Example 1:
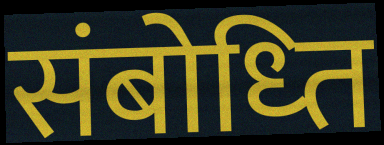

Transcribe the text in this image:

संबोध्ति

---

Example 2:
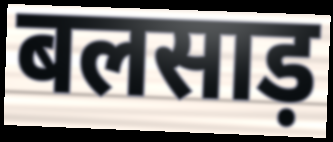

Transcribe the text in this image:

बलसाड़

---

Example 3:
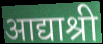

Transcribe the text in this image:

आद्याश्री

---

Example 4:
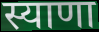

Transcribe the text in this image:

स्याणा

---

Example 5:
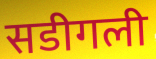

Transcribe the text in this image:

सडीगली